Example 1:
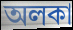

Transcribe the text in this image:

অলকা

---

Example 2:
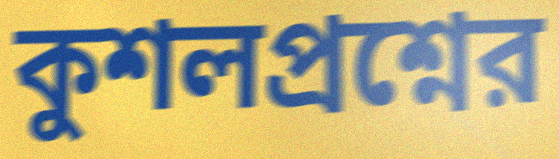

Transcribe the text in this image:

কুশলপ্রশ্নের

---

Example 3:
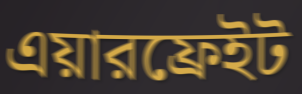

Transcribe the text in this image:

এয়ারফ্রেইট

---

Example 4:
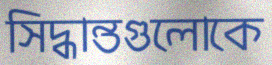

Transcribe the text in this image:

সিদ্ধান্তগুলোকে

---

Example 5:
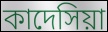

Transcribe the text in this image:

কাদেসিয়া